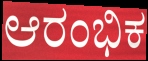
ಆರಂಭಿಕ